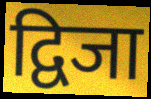
द्विजा